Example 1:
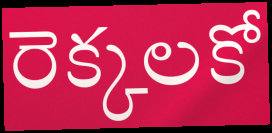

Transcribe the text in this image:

రెక్కలకో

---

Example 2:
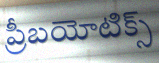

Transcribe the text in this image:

ప్రీబయోటిక్స్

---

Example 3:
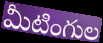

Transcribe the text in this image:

మీటింగుల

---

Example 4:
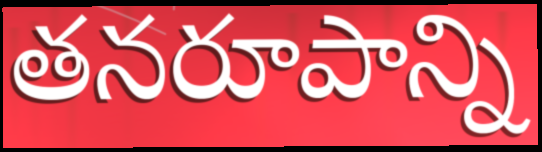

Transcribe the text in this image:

తనరూపాన్ని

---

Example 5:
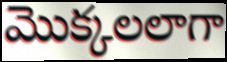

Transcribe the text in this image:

మొక్కలలాగా